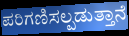
ಪರಿಗಣಿಸಲ್ಪಡುತ್ತಾನೆ